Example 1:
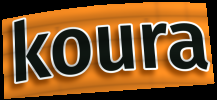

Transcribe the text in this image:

koura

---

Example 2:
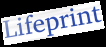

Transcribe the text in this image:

Lifeprint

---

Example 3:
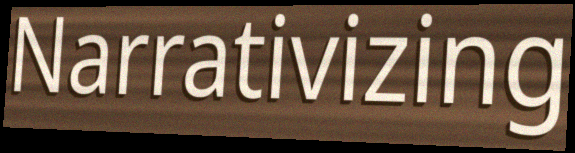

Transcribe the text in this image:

Narrativizing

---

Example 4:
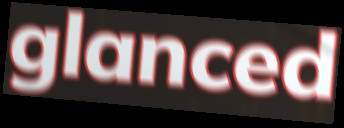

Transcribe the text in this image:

glanced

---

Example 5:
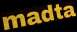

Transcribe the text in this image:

madta